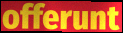
offerunt